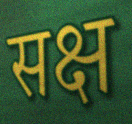
सक्ष